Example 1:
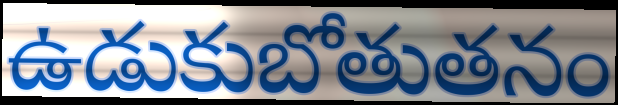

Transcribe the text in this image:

ఉడుకుబోతుతనం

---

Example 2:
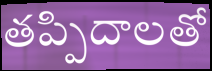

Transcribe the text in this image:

తప్పిదాలతో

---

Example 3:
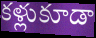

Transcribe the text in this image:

కళ్లుకూడా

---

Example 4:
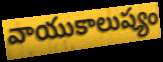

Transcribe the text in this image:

వాయుకాలుష్యం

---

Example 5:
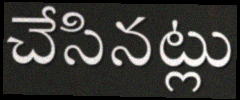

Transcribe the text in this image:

చేసినట్లు